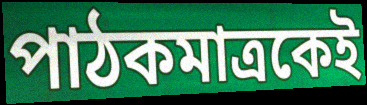
পাঠকমাত্রকেই